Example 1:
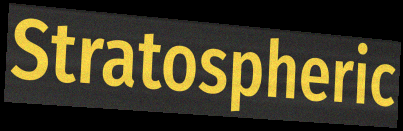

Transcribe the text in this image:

Stratospheric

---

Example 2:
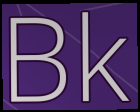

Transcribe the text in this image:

Bk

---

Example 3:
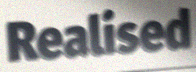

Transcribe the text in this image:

Realised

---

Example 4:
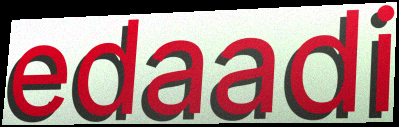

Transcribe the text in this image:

edaadi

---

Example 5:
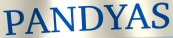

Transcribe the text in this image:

PANDYAS